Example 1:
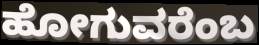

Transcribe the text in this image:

ಹೋಗುವರೆಂಬ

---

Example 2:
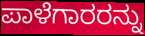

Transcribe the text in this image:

ಪಾಳೆಗಾರರನ್ನು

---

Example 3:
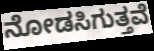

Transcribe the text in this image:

ನೋಡಸಿಗುತ್ತವೆ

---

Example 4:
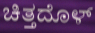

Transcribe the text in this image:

ಚಿತ್ತದೊಳ್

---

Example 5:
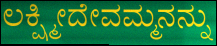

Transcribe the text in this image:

ಲಕ್ಷ್ಮೀದೇವಮ್ಮನನ್ನು